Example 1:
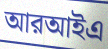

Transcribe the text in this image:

আরআইএ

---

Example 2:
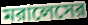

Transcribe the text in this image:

মরালেসের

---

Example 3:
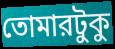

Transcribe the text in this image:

তোমারটুকু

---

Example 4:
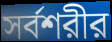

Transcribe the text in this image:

সর্বশরীর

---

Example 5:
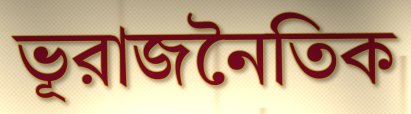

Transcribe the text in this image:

ভূরাজনৈতিক